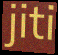
jiti